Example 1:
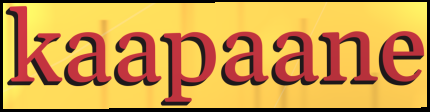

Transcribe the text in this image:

kaapaane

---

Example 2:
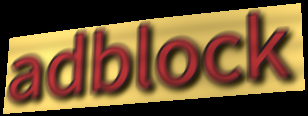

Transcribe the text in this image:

adblock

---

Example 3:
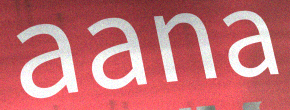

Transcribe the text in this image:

aana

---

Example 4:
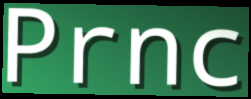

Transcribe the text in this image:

Prnc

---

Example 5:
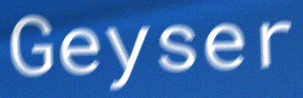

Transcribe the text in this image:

Geyser